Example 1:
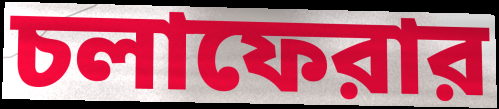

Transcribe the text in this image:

চলাফেরার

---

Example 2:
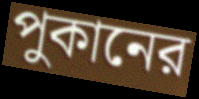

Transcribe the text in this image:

পুকানের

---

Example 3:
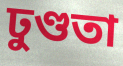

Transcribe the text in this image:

ঢুণ্ডতা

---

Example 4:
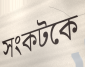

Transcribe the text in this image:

সংকটকে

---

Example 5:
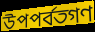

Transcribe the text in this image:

উপপর্বতগণ